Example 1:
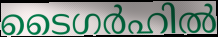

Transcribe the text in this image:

ടൈഗർഹിൽ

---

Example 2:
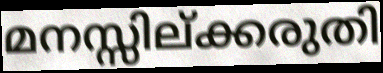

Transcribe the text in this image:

മനസ്സില്ക്കരുതി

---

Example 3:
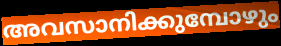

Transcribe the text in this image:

അവസാനിക്കുമ്പോഴും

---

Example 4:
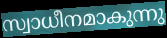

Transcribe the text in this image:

സ്വാധീനമാകുന്നു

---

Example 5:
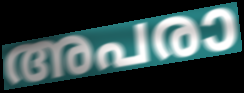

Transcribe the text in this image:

അപരാ